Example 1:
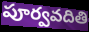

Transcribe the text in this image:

పూర్వవదితి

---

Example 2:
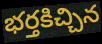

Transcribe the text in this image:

భర్తకిచ్చిన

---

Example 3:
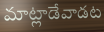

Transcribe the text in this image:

మాట్లాడేవాడట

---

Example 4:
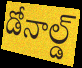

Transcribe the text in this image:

డోనాల్డ్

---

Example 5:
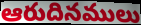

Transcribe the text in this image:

ఆరుదినములు